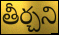
తీర్చని